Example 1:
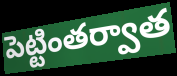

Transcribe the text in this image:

పెట్టింతర్వాత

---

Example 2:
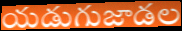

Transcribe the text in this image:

యడుగుజాడల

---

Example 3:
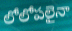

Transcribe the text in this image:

లోలోపలైనా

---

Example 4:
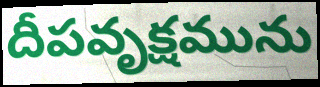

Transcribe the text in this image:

దీపవృక్షమును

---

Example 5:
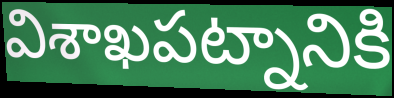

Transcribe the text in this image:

విశాఖపట్నానికి